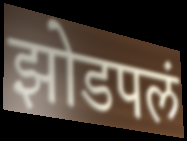
झोडपलं